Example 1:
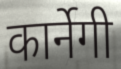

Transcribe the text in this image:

कार्नेगी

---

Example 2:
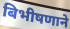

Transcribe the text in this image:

बिभीषणाने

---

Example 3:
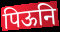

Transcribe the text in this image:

पिऊनि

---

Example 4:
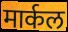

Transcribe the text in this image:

मार्कल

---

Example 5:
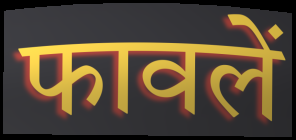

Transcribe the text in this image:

फावलें